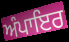
ਅੰਪਾਇਰ